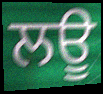
ਲਊ